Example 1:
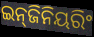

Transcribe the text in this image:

ଇନ୍‍ଜିନିୟରିଂ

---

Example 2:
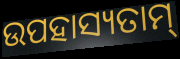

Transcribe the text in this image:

ଉପହାସ୍ୟତାମ୍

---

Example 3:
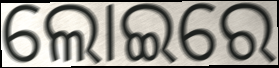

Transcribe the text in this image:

ଲୋଇରେ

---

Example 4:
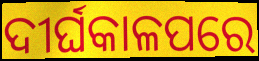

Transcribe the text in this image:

ଦୀର୍ଘକାଳପରେ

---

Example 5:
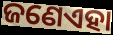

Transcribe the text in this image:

ଜଣେଏହା